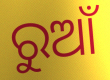
ରୁଆଁ